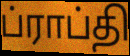
ப்ராப்தி